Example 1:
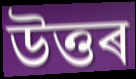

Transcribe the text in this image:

উত্তৰ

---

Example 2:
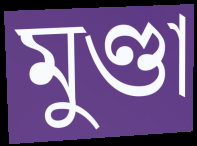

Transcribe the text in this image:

মুণ্ডা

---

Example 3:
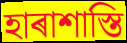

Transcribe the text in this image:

হাৰাশাস্তি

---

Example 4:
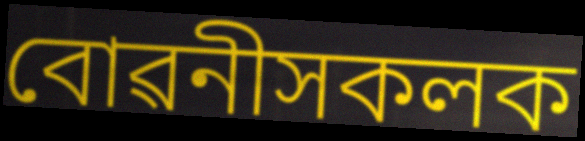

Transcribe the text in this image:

বোৱনীসকলক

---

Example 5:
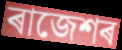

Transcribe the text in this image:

ৰাজেশৰ